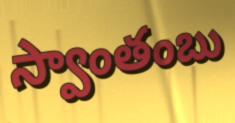
స్వాంతంబు